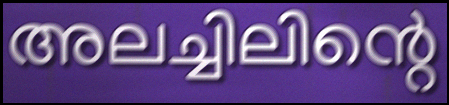
അലച്ചിലിന്റെ